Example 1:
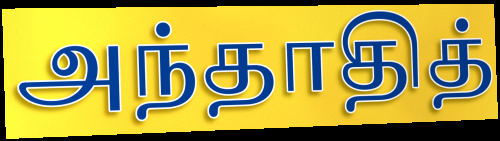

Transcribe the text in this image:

அந்தாதித்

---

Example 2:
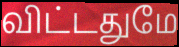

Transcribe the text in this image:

விட்டதுமே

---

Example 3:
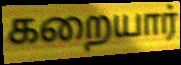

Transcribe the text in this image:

கறையார்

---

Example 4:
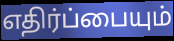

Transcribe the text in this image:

எதிர்ப்பையும்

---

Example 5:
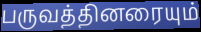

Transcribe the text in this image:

பருவத்தினரையும்